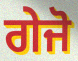
ਗੇਜੋ